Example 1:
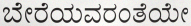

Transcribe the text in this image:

ಬೇರೆಯವರಂತೆಯೇ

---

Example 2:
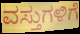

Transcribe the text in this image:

ವಸ್ತುಗಳಿಗೆ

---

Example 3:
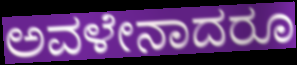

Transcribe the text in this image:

ಅವಳೇನಾದರೂ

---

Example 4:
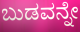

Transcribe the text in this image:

ಬುಡವನ್ನೇ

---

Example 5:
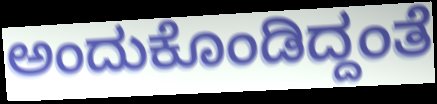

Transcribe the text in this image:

ಅಂದುಕೊಂಡಿದ್ದಂತೆ